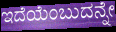
ಇದೆಯೆಂಬುದನ್ನೇ